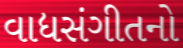
વાદ્યસંગીતનો